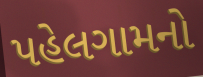
પહેલગામનો